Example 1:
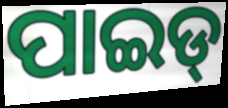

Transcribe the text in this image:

ପାଇଡ୍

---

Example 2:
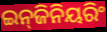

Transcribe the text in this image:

ଇନ୍‍ଜିନିୟରିଂ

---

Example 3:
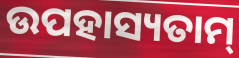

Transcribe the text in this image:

ଉପହାସ୍ୟତାମ୍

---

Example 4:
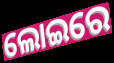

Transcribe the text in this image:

ଲୋଇରେ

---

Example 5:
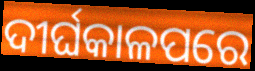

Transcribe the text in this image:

ଦୀର୍ଘକାଳପରେ